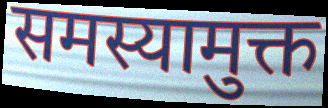
समस्यामुक्त